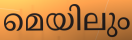
മെയിലും